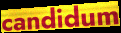
candidum